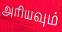
அரியவும்